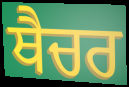
ਥੈਚਰ